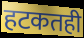
हटकतही